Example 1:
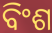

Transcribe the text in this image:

ବିଂଶ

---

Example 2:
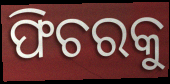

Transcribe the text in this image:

ଫିଚରକୁ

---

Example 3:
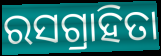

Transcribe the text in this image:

ରସଗ୍ରାହିତା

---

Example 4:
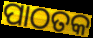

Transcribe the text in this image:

ପାଠତକ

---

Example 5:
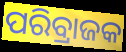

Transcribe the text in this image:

ପରିବ୍ରାଜକ